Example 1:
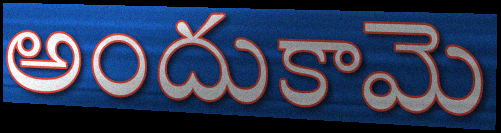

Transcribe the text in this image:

అందుకామె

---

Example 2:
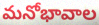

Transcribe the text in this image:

మనోభావాల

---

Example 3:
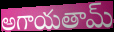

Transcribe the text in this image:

అగాయతామ్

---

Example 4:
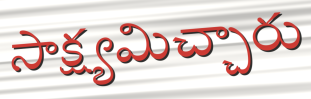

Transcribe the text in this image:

సాక్ష్యమిచ్చారు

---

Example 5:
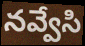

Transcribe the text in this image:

నవ్వేసి